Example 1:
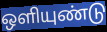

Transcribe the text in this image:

ஒளியுண்டு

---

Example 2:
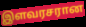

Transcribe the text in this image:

இளவரசரான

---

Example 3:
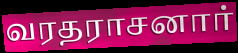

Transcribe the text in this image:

வரதராசனார்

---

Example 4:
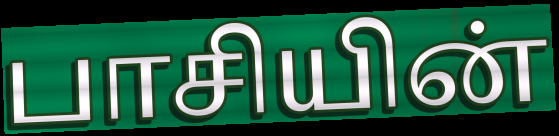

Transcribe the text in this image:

பாசியின்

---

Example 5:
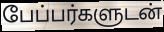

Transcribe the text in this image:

பேப்பர்களுடன்